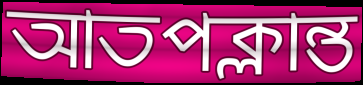
আতপক্লান্ত